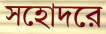
সহোদরে